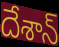
దేశాన్